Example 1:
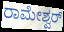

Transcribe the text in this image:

ರಾಮೇಶ್ವರ್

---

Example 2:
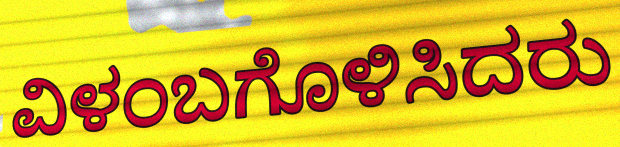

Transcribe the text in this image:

ವಿಳಂಬಗೊಳಿಸಿದರು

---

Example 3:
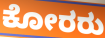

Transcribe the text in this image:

ಕೋರರು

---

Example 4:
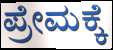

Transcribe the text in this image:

ಪ್ರೇಮಕ್ಕೆ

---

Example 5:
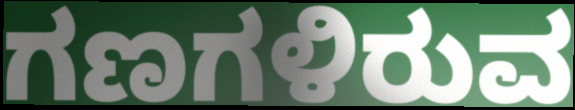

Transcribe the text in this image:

ಗಣಗಳಿರುವ